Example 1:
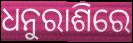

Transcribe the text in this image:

ଧନୁରାଶିରେ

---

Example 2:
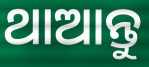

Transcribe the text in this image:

ଥାଆନ୍ତୁ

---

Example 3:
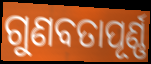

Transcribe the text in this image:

ଗୁଣବତାପୂର୍ଣ୍ଣ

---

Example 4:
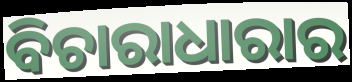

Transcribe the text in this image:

ବିଚାରାଧାରାର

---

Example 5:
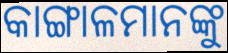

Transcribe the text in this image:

କାଙ୍ଗାଳମାନଙ୍କୁ